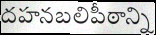
దహనబలిపీఠాన్ని